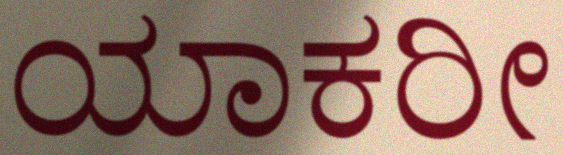
ಯಾಕರೀ